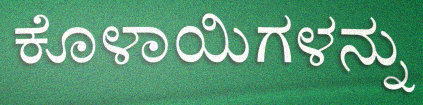
ಕೊಳಾಯಿಗಳನ್ನು